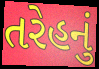
તરેહનું